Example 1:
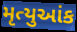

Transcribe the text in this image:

મૃત્યુઆંક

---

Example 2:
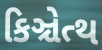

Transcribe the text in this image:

કિઞ્ચેત્થ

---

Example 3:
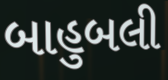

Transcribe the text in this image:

બાહુબલી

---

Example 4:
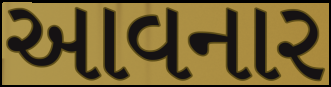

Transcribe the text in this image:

આવનાર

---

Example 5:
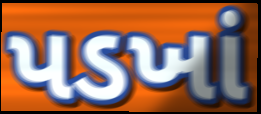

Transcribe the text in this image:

પડખાં